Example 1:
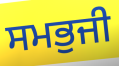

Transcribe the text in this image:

ਸਮਭੁਜੀ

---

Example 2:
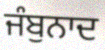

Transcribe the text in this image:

ਜੰਬੁਨਾਦ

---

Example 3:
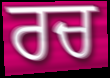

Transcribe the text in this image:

ਰਚ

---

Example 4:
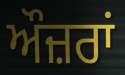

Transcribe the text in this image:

ਔਜ਼ਰਾਂ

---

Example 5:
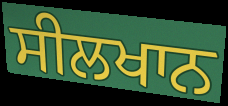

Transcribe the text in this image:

ਸੀਲਖਾਨ